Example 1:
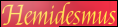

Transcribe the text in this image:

Hemidesmus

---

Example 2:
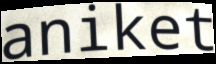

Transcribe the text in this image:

aniket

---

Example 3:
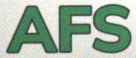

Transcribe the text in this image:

AFS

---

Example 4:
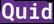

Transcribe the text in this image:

Quid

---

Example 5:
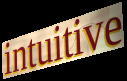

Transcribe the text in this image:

intuitive